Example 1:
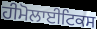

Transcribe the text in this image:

ਹੀਮੋਲਾਈਟਿਕਸ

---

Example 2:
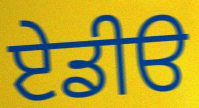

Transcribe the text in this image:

ਏਡੀੳ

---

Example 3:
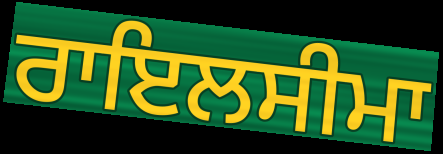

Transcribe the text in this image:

ਰਾਇਲਸੀਮਾ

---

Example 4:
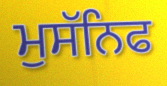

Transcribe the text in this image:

ਮੁਸੱਨਿਫ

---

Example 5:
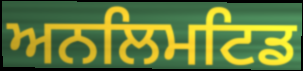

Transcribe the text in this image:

ਅਨਲਿਮਟਿਡ